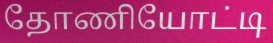
தோணியோட்டி